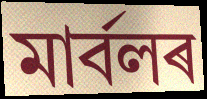
মাৰ্বলৰ